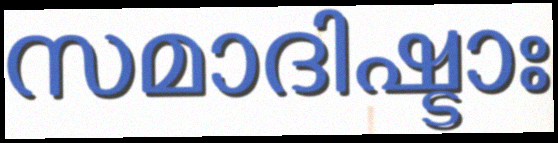
സമാദിഷ്ടാഃ